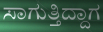
ಸಾಗುತ್ತಿದ್ದಾಗ